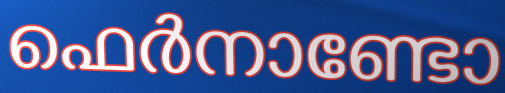
ഫെർനാണ്ടോ